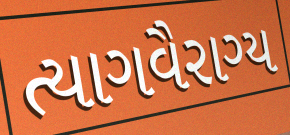
ત્યાગવૈરાગ્ય